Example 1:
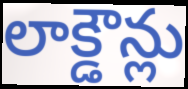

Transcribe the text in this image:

లాక్డౌన్లు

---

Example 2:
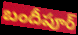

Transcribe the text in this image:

బందీపూర్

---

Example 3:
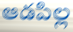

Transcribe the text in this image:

ఆడపిల్ల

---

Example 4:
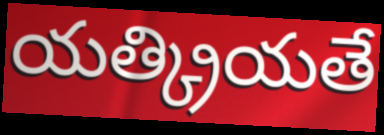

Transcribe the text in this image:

యత్క్రియతే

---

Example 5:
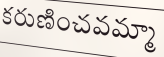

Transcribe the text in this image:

కరుణించవమ్మా